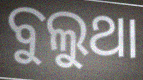
ବୁଲୁଥା